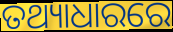
ତଥ୍ୟାଧାରରେ